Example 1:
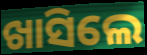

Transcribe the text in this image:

ଖାସିଲେ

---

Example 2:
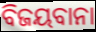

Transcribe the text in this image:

ବିଜୟବାନା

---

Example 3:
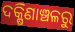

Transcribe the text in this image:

ଦକ୍ଷିଣାଞ୍ଚଳରୁ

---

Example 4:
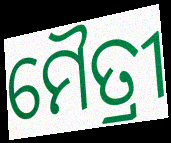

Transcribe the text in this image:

ମୈତ୍ରୀ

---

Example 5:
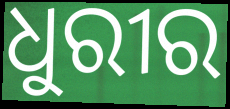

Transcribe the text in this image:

ଧୁରୀର